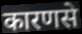
कारणसे